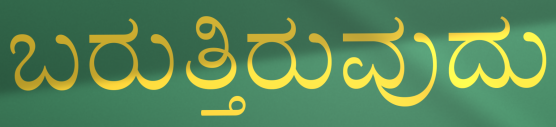
ಬರುತ್ತಿರುವುದು